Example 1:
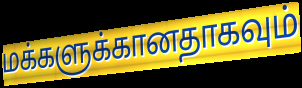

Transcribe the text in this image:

மக்களுக்கானதாகவும்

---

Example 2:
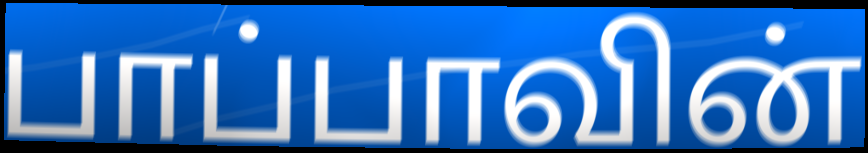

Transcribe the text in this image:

பாப்பாவின்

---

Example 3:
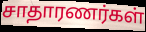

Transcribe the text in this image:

சாதாரணர்கள்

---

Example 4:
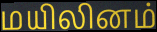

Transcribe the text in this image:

மயிலினம்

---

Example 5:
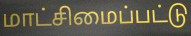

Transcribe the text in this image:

மாட்சிமைப்பட்டு